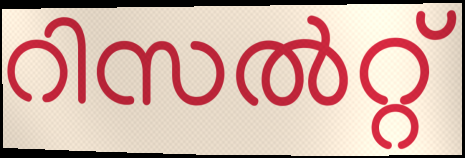
റിസൽറ്റ്